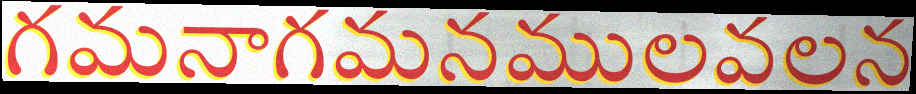
గమనాగమనములవలన